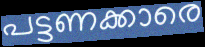
പട്ടണക്കാരെ